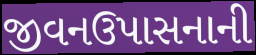
જીવનઉપાસનાની